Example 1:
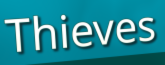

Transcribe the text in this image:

Thieves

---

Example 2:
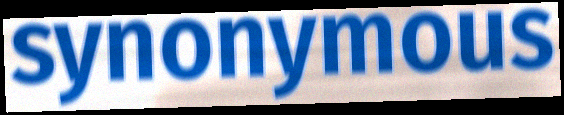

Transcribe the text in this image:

synonymous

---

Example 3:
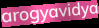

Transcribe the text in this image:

arogyavidya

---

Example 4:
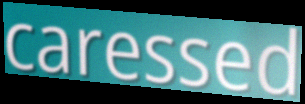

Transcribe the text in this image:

caressed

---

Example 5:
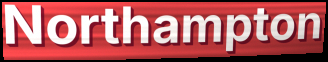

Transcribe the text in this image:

Northampton